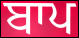
ਬਾਪ